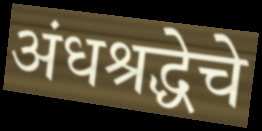
अंधश्रद्धेचे